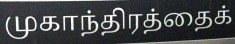
முகாந்திரத்தைக்